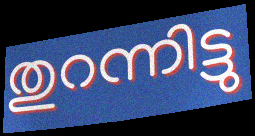
തുറന്നിട്ടു